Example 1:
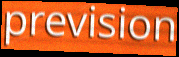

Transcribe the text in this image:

prevision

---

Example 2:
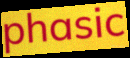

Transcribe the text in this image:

phasic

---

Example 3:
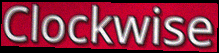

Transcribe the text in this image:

Clockwise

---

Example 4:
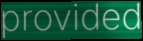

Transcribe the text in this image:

provided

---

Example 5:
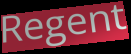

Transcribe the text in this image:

Regent